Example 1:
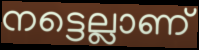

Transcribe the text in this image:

നട്ടെല്ലാണ്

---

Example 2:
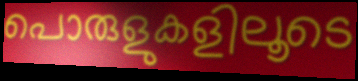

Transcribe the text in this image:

പൊരുളുകളിലൂടെ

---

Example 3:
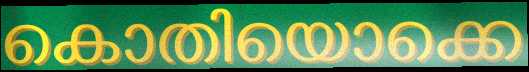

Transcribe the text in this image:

കൊതിയൊക്കെ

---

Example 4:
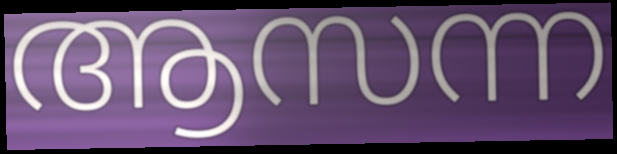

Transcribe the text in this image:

ആസന്ന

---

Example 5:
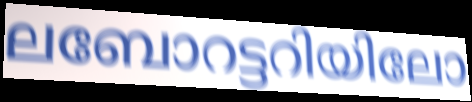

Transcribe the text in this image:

ലബോറട്ടറിയിലോ